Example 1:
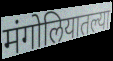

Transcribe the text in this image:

मंगोलियातल्या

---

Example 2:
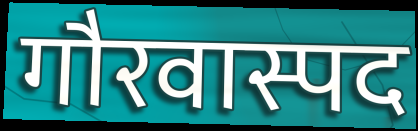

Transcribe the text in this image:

गौरवास्पद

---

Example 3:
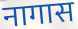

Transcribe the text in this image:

नागास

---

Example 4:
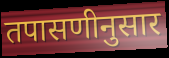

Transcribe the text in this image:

तपासणीनुसार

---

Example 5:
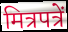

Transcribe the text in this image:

मित्रपत्रें